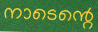
നാടെന്റെ